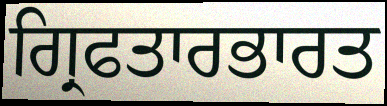
ਗ੍ਰਿਫਤਾਰਭਾਰਤ